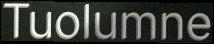
Tuolumne